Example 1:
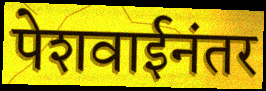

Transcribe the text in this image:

पेशवाईनंतर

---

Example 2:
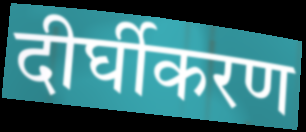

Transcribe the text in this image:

दीर्घीकरण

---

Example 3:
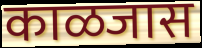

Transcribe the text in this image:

काळजास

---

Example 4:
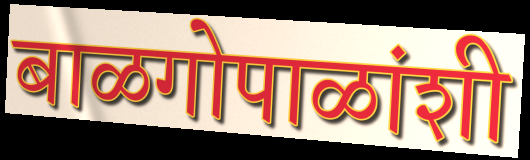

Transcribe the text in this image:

बाळगोपाळांशी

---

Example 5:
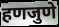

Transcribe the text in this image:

हणजुणे